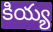
కియ్య